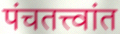
पंचतत्त्वांत